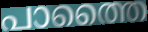
പാത്തൈ